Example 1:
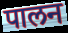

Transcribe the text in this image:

पालन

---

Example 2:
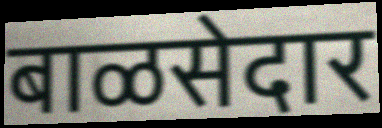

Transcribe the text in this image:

बाळसेदार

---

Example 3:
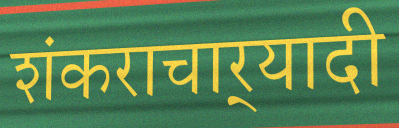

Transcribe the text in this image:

शंकराचार्यादी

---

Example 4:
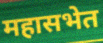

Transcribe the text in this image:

महासभेत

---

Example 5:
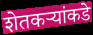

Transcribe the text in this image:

शेतकर्‍यांकडे